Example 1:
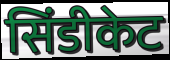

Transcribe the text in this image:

सिंडीकेट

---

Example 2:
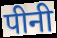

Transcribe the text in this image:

पीनी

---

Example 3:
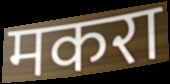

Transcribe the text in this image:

मकरा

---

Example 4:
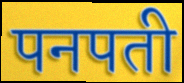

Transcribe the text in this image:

पनपती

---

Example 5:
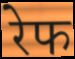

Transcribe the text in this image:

रेफ